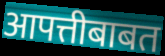
आपत्तीबाबत